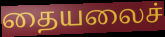
தையலைச்